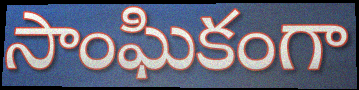
సాంఘికంగా